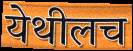
येथीलच